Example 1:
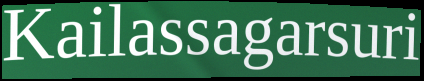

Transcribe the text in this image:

Kailassagarsuri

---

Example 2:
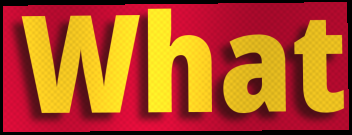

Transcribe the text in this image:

What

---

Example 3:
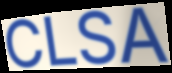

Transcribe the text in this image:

CLSA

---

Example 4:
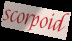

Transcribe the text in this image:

scorpoid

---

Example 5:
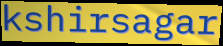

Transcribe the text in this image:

kshirsagar